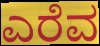
ಎರೆವ